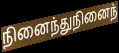
நினைந்துநினைந்